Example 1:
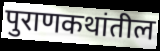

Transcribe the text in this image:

पुराणकथांतील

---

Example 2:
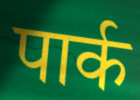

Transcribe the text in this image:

पार्क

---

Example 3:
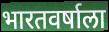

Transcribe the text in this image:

भारतवर्षाला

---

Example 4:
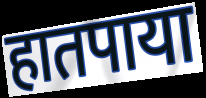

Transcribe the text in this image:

हातपाया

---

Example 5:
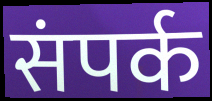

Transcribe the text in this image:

संपर्क